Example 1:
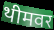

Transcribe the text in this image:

थीमवर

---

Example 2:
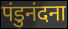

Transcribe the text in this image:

पंडुनंदना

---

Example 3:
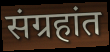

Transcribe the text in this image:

संग्रहांत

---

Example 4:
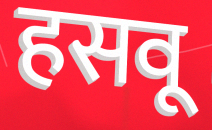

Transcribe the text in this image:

हसवू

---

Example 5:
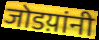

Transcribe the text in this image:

जोडय़ांनी